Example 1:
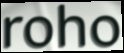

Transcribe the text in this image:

roho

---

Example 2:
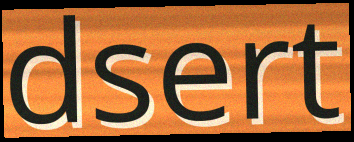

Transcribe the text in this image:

dsert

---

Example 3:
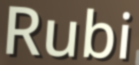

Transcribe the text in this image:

Rubi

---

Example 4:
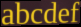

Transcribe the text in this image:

abcdef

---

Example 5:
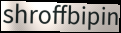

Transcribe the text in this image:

shroffbipin